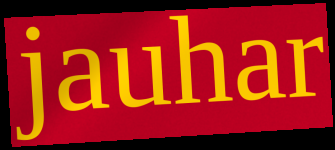
jauhar